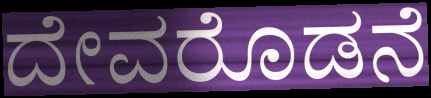
ದೇವರೊಡನೆ